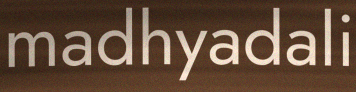
madhyadali